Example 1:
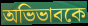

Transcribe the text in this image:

অভিভাবকে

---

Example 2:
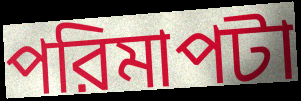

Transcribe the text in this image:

পরিমাপটা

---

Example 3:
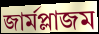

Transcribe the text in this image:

জার্মপ্লাজম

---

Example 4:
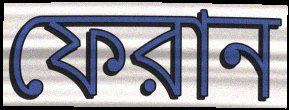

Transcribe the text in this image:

ফেরান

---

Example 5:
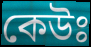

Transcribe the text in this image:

কেউঃ